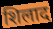
शिलाद